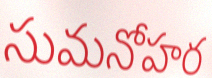
సుమనోహర